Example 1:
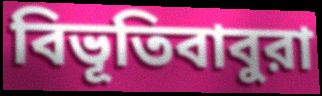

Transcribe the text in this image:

বিভূতিবাবুরা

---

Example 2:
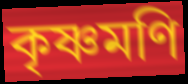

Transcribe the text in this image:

কৃষ্ণমণি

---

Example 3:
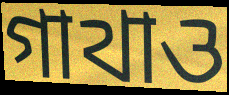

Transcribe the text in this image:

গাথাও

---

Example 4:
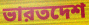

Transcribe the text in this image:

ভারতদেশ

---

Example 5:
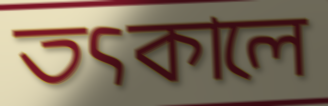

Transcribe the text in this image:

তৎকালে